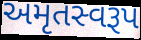
અમૃતસ્વરૂપ